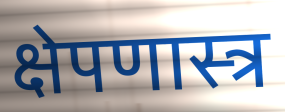
क्षेपणास्त्र